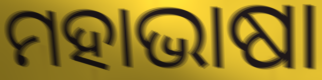
ମହାଭାଷା